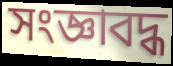
সংজ্ঞাবদ্ধ